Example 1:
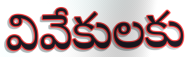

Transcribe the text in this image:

వివేకులకు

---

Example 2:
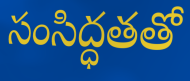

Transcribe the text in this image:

సంసిద్ధతతో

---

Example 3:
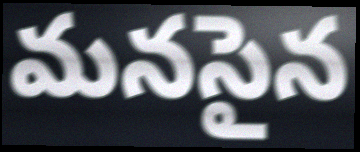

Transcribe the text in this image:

మనసైన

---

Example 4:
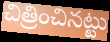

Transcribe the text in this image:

చిత్రించినట్టు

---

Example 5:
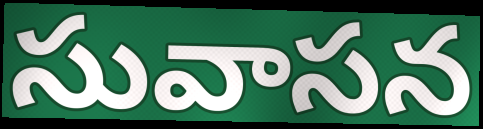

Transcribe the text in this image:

సువాసన